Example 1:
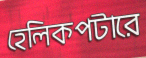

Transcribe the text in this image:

হেলিকপটারে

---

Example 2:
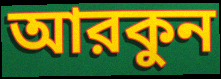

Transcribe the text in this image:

আরকুন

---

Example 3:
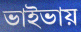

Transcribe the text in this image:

ভাইভায়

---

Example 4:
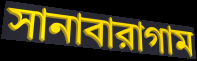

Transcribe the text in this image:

সানাবারাগাম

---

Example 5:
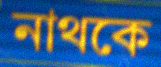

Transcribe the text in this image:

নাথকে